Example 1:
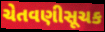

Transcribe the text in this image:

ચેતવણીસૂચક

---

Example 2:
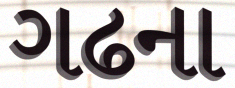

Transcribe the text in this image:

ગઢના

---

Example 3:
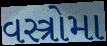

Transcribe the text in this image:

વસ્ત્રોમા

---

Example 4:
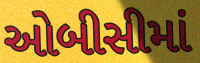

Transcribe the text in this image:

ઓબીસીમાં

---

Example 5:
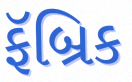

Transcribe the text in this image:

ફૅબ્રિક